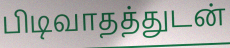
பிடிவாதத்துடன்